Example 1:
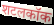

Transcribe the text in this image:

शटलकॉक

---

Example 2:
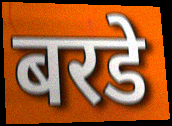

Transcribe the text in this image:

बरडे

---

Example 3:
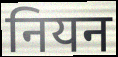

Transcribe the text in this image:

नियन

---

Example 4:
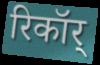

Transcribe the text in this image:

रिकॉर्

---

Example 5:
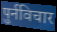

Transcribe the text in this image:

पुर्नविचार